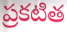
ప్రకటిత